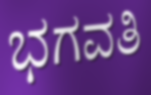
ಭಗವತಿ